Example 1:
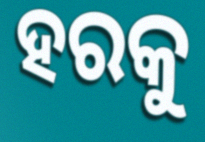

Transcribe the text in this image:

ହରକୁ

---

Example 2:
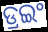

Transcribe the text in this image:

ଡ୍ରଇଂ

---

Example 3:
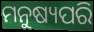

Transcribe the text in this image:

ମନୁଷ୍ୟପରି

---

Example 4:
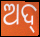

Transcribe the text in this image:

ଅଦ୍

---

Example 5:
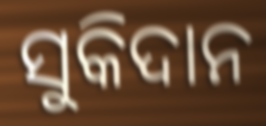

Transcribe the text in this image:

ସୁକିଦାନ